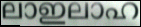
ലാഇലാഹ